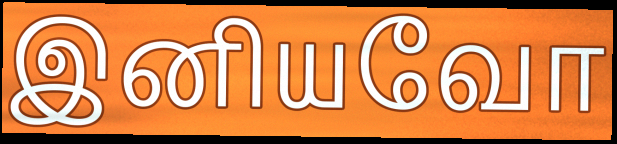
இனியவோ